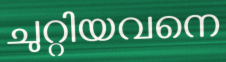
ചുറ്റിയവനെ